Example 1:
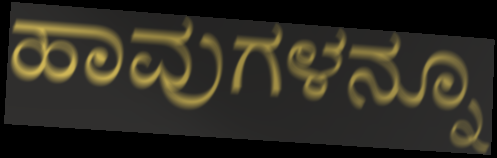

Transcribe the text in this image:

ಹಾವುಗಳನ್ನೂ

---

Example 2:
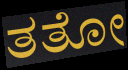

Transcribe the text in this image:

ತತೋ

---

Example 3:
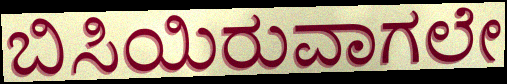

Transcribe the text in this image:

ಬಿಸಿಯಿರುವಾಗಲೇ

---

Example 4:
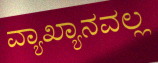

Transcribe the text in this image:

ವ್ಯಾಖ್ಯಾನವಲ್ಲ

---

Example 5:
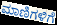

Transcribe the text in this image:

ಮಾಣಿಗಳಿಗೆ